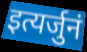
इत्यर्जुनं